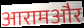
आरामऔर